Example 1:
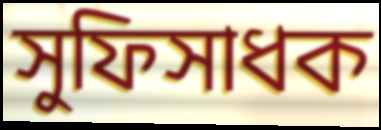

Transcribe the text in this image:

সুফিসাধক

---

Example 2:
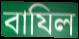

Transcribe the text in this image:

বাযিল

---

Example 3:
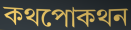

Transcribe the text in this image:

কথপোকথন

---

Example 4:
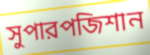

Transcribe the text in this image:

সুপারপজিশান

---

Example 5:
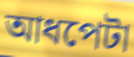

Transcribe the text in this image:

আধপেটা